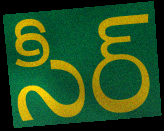
సీర్